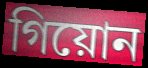
গিয়োন